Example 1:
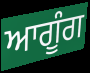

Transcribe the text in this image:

ਆਗੂੰਗ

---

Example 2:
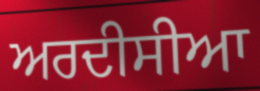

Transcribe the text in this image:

ਅਰਦੀਸੀਆ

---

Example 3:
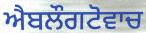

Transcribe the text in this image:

ਐਬਲੌਗਟੋਵਾਚ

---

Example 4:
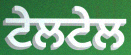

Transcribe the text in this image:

ਟੇਲਟੇਲ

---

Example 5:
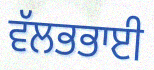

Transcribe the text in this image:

ਵੱਲਭਭਾਈ